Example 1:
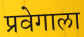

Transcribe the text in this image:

प्रवेगाला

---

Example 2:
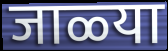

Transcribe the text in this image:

जाळ्या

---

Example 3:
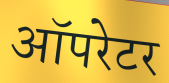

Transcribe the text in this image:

ऑपरेटर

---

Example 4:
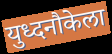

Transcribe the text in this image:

युध्दनौकेला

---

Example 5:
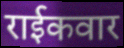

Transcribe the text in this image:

राईकवार